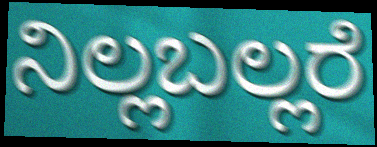
ನಿಲ್ಲಬಲ್ಲರೆ